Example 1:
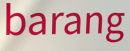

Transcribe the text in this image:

barang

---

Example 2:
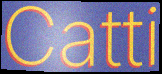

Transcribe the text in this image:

Catti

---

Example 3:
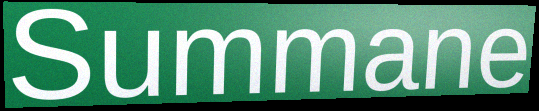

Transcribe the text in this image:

Summane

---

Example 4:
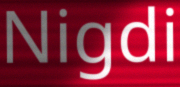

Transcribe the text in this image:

Nigdi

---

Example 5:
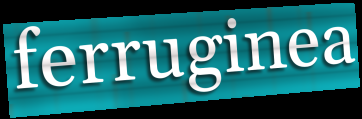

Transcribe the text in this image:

ferruginea